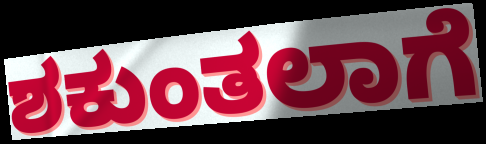
ಶಕುಂತಲಾಗೆ